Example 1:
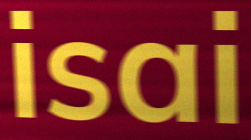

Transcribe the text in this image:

isai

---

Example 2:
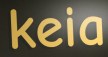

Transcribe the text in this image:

keia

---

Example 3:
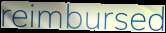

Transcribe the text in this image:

reimbursed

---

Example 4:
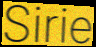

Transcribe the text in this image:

Sirie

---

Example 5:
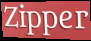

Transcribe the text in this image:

Zipper